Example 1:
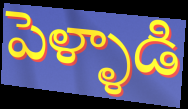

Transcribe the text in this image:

పెళ్ళాడి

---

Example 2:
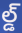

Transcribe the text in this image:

ల్డ్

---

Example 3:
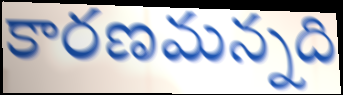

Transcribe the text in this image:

కారణమన్నది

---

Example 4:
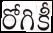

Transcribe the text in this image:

రోగికీ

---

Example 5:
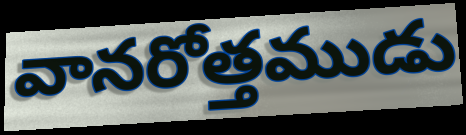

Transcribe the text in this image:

వానరోత్తముడు